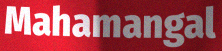
Mahamangal